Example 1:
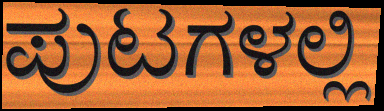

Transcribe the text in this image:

ಪುಟಗಳಲ್ಲಿ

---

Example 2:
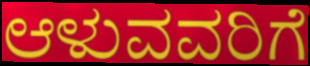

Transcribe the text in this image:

ಆಳುವವರಿಗೆ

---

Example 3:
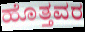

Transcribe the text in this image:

ಹೊತ್ತವರ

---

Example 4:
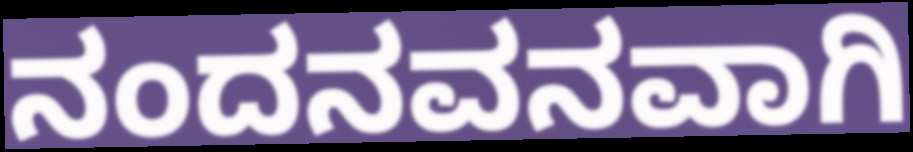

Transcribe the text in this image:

ನಂದನವನವಾಗಿ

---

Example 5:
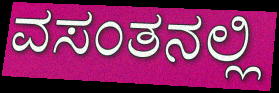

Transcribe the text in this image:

ವಸಂತನಲ್ಲಿ